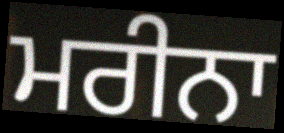
ਮਰੀਨਾ